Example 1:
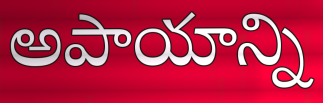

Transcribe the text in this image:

అపాయాన్ని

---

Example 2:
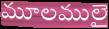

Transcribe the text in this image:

మూలములై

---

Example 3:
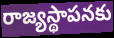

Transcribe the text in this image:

రాజ్యస్థాపనకు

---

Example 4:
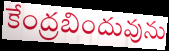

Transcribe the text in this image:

కేంద్రబిందువును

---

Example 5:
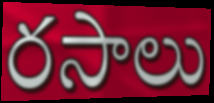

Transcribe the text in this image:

రసాలు